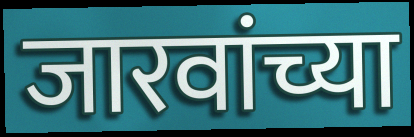
जारवांच्या